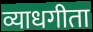
व्याधगीता